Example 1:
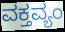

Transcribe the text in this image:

ವಕ್ತವ್ಯಂ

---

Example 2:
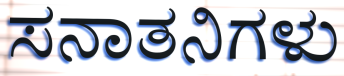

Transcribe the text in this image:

ಸನಾತನಿಗಳು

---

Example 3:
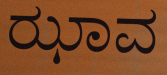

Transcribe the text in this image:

ಝಾವ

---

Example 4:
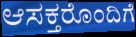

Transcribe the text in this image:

ಆಸಕ್ತರೊಂದಿಗೆ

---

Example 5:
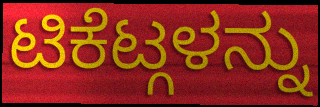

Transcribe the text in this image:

ಟಿಕೆಟ್ಗಳನ್ನು